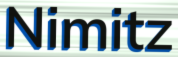
Nimitz